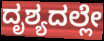
ದೃಶ್ಯದಲ್ಲೇ